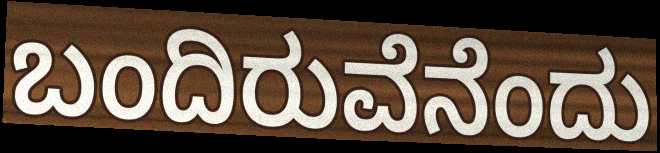
ಬಂದಿರುವೆನೆಂದು